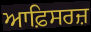
ਆਫ਼ਿਸਰਜ਼